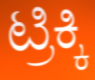
ಟ್ರಿಕ್ಕಿ